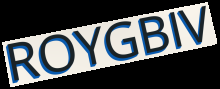
ROYGBIV